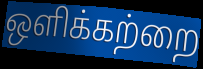
ஒளிக்கற்றை